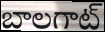
బాలగాట్